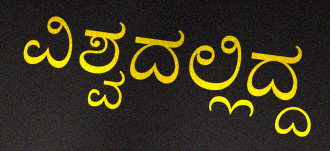
ವಿಶ್ವದಲ್ಲಿದ್ದ